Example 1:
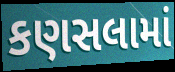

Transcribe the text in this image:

કણસલામાં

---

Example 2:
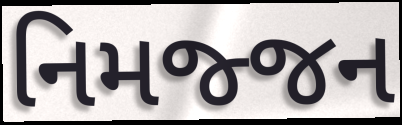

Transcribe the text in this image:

નિમજ્જન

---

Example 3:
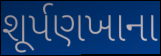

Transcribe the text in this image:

શૂર્પણખાના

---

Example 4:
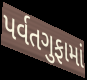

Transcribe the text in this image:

પર્વતગુફામાં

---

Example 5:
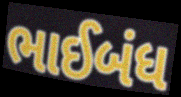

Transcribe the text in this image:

ભાઈબંધ